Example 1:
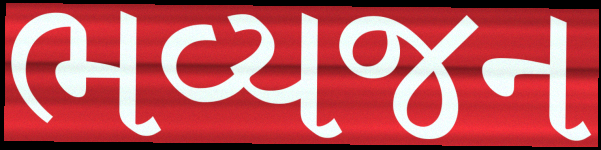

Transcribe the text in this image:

ભવ્યજન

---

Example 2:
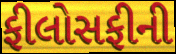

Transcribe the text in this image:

ફીલોસફીની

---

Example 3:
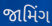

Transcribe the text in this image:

જામિંગ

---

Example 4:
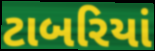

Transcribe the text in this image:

ટાબરિયાં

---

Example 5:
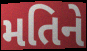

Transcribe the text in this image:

મતિને